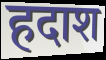
हदाश